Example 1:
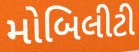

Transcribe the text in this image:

મોબિલીટી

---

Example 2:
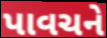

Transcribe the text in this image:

પાવચને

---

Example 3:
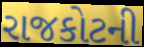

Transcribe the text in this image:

રાજકોટની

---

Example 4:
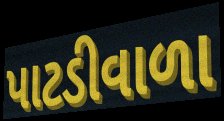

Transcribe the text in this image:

પાટડીવાળા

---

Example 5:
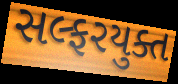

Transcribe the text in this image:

સલ્ફરયુક્ત